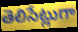
తెలిసేట్లుగా